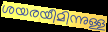
ശയരയീമിന്നുള്ള